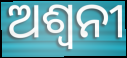
ଅଶ୍ୱନୀ